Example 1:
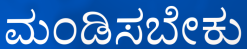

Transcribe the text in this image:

ಮಂಡಿಸಬೇಕು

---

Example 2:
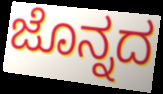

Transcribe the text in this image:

ಜೊನ್ನದ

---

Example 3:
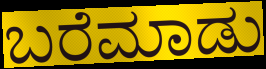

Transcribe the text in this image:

ಬರೆಮಾಡು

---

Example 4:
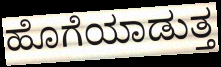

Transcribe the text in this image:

ಹೊಗೆಯಾಡುತ್ತ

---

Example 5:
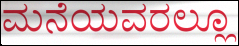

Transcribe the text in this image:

ಮನೆಯವರಲ್ಲೂ